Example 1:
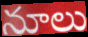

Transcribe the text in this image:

నూలు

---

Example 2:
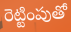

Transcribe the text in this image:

రెట్టింపుతో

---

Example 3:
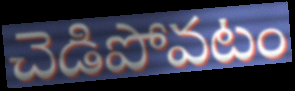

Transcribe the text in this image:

చెడిపోవటం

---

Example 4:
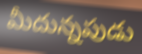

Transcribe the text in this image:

మీదున్నపుడు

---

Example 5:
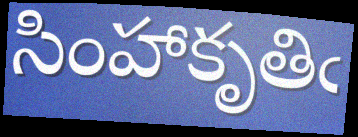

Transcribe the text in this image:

సింహాకృతిఁ